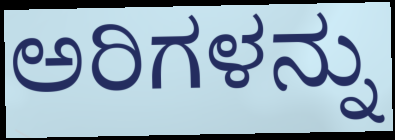
ಅರಿಗಳನ್ನು